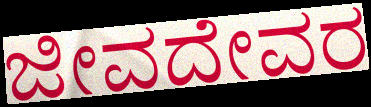
ಜೀವದೇವರ